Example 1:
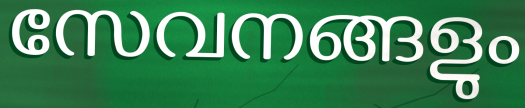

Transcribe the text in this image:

സേവനങ്ങളും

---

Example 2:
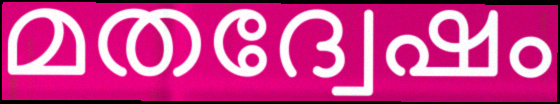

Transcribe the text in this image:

മതദ്വേഷം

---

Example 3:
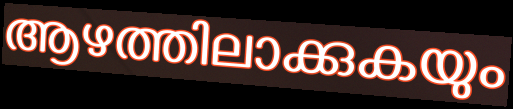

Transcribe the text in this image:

ആഴത്തിലാക്കുകയും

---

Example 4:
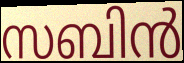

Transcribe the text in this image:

സബിൻ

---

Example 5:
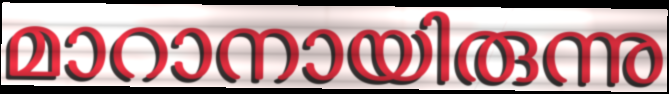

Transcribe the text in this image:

മാറാനായിരുന്നു